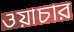
ওয়াচার